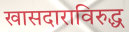
खासदाराविरुद्ध